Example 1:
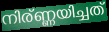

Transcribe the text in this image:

നിര്ണ്ണയിച്ചത്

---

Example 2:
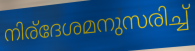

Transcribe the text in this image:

നിര്ദേശമനുസരിച്ച്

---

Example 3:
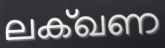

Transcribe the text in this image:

ലക്ഖണ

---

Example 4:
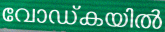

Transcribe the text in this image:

വോഡ്കയിൽ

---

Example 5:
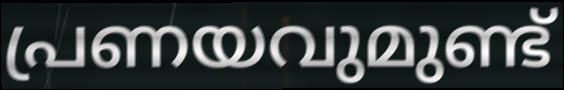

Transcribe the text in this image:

പ്രണയവുമുണ്ട്